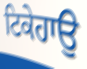
ਟਿਕੇਹਾਉ